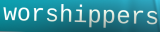
worshippers